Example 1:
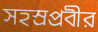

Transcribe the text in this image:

সহস্রপ্রবীর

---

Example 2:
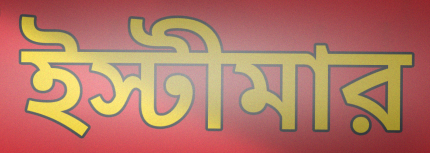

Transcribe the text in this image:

ইস্টীমার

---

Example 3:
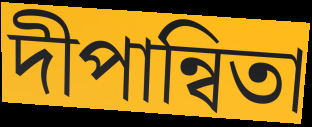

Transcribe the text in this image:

দীপান্বিতা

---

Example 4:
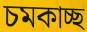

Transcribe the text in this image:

চমকাচ্ছ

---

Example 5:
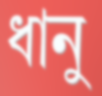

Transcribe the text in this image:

ধানু